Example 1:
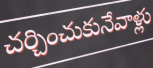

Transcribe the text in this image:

చర్చించుకునేవాళ్లు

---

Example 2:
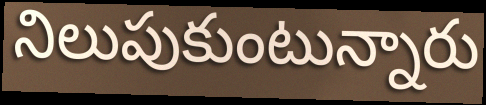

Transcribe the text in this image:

నిలుపుకుంటున్నారు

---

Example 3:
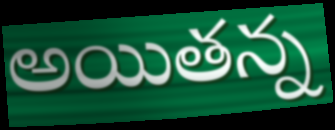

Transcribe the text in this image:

అయితన్న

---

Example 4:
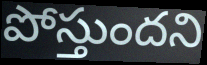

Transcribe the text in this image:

పోస్తుందని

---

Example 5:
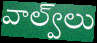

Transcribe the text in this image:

వాల్వ్‌లు